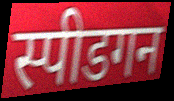
स्पीडगन